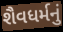
શૈવધર્મનું